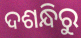
ଦଶନ୍ଧିରୁ